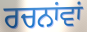
ਰਚਨਾਂਵਾਂ